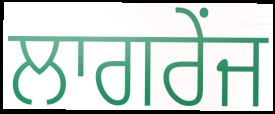
ਲਾਗਰੇਂਜ